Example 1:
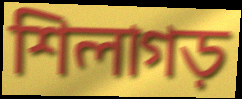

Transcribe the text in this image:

শিলাগড়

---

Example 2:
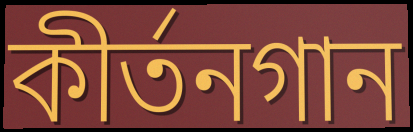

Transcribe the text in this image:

কীর্তনগান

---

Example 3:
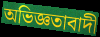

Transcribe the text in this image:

অভিজ্ঞতাবাদী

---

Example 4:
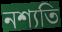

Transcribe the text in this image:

নশ্যতি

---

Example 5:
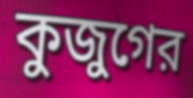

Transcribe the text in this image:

কুজুগের